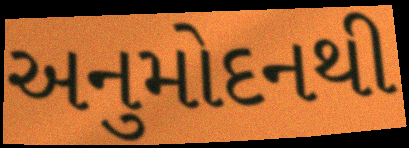
અનુમોદનથી